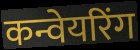
कन्वेयरिंग